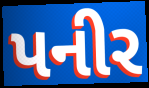
પનીર